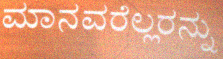
ಮಾನವರೆಲ್ಲರನ್ನು